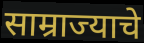
साम्राज्याचे